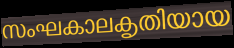
സംഘകാലകൃതിയായ